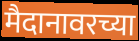
मैदानावरच्या